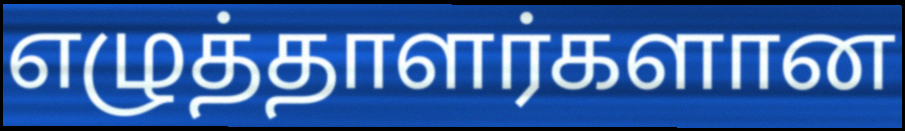
எழுத்தாளர்களான